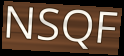
NSQF